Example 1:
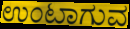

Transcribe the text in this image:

ಉಂಟಾಗುವ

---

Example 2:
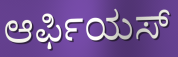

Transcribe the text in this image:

ಆರ್ಫಿಯಸ್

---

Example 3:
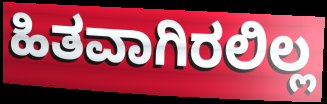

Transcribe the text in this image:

ಹಿತವಾಗಿರಲಿಲ್ಲ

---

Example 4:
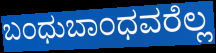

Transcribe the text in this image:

ಬಂಧುಬಾಂಧವರೆಲ್ಲ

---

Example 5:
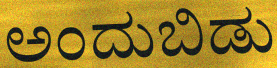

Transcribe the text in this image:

ಅಂದುಬಿಡು